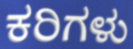
ಕರಿಗಳು